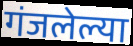
गंजलेल्या